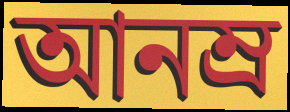
আনম্র